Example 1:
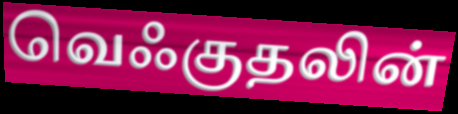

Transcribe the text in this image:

வெஃகுதலின்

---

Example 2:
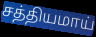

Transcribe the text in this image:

சத்தியமாய்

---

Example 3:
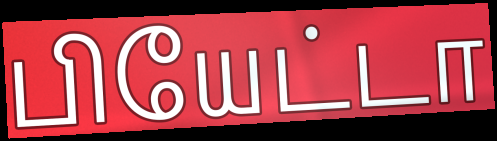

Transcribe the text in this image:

பியேட்டா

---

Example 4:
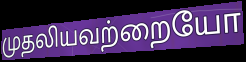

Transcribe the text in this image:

முதலியவற்றையோ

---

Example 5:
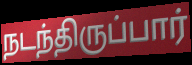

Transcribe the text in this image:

நடந்திருப்பார்